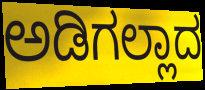
ಅಡಿಗಲ್ಲಾದ